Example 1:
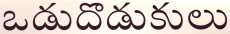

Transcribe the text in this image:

ఒడుదొడుకులు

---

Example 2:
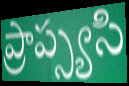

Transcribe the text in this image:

ప్రాప్స్యసి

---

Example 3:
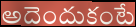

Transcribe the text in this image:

అదెందుకంటే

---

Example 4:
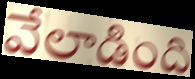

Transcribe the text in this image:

వేలాడింది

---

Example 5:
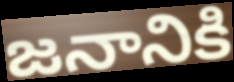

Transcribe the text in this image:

జనానికి